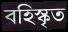
বহিস্কৃত